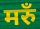
मरुँ